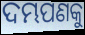
ଦମ୍ଭପଣକୁ